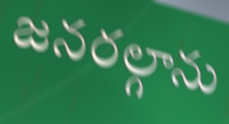
జనరల్గాను